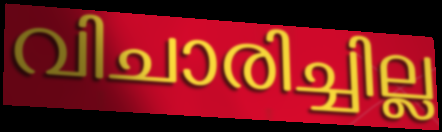
വിചാരിച്ചില്ല